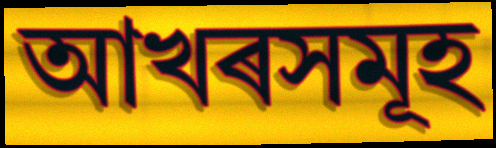
আখৰসমূহ